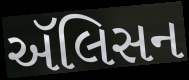
ઍલિસન